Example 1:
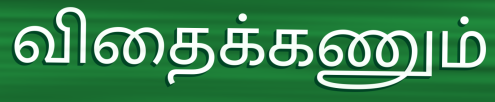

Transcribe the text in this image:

விதைக்கணும்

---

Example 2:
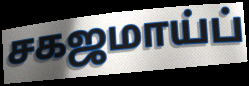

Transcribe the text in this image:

சகஜமாய்ப்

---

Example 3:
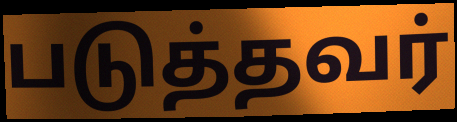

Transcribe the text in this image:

படுத்தவர்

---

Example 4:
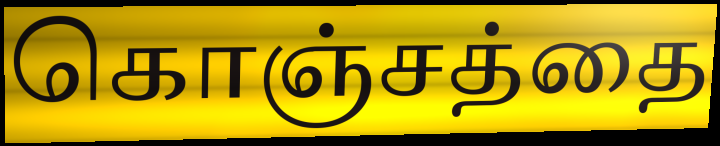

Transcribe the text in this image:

கொஞ்சத்தை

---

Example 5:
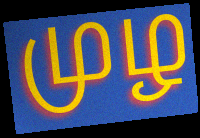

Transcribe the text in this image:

முழ